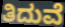
ತಿದುವೆ